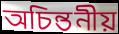
অচিন্তনীয়